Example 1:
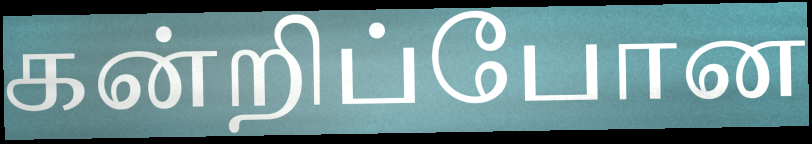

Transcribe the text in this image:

கன்றிப்போன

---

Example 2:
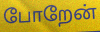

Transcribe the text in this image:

போறேன்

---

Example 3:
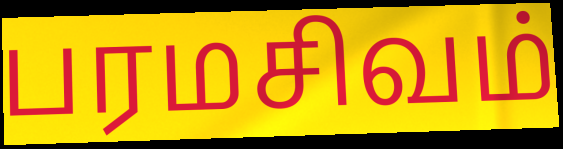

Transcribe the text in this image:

பரமசிவம்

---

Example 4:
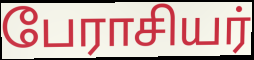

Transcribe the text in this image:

பேராசியர்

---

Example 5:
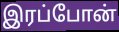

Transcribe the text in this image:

இரப்போன்